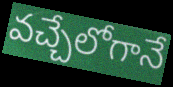
వచ్చేలోగానే